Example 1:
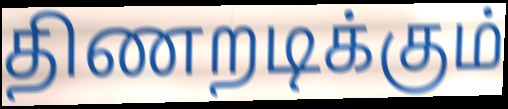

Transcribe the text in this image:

திணறடிக்கும்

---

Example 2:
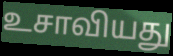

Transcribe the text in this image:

உசாவியது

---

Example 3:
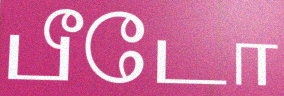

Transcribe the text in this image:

பீடோ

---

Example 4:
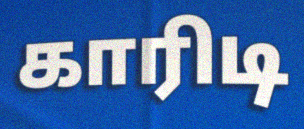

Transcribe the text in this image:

காரிடி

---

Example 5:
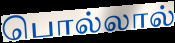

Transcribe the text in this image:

பொல்லால்